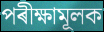
পৰীক্ষামূলক